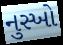
નુસ્ખો